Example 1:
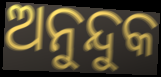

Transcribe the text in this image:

ଅନୁନ୍ଦୁକ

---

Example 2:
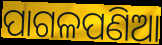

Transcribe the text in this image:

ପାଗଳପଣିଆ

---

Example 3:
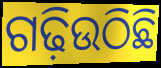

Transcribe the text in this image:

ଗଢ଼ିଉଠିଛି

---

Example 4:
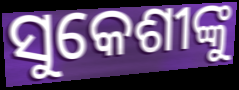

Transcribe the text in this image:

ସୁକେଶୀଙ୍କୁ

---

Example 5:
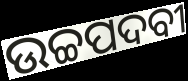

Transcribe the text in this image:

ଉଚ୍ଚପଦବୀ